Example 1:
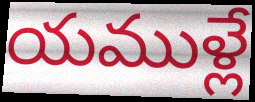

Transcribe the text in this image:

యముళ్లే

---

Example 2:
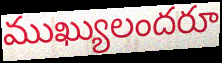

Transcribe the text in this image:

ముఖ్యులందరూ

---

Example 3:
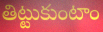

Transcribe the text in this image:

తిట్టుకుంటాం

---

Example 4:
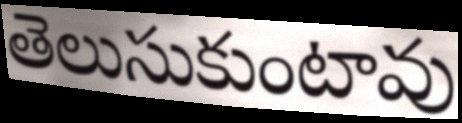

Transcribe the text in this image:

తెలుసుకుంటావు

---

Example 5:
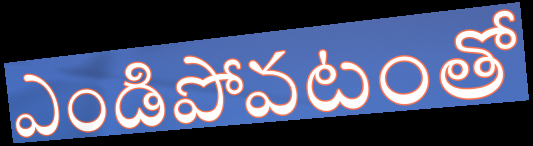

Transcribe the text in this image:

ఎండిపోవటంతో